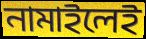
নামাইলেই